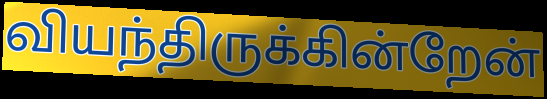
வியந்திருக்கின்றேன்